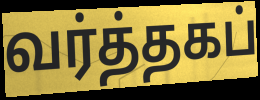
வர்த்தகப்